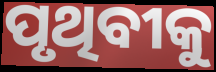
ପୃଥିବୀକୁ